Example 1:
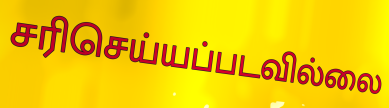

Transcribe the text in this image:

சரிசெய்யப்படவில்லை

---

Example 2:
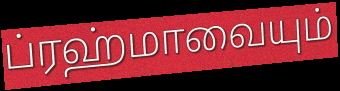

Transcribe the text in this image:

ப்ரஹ்மாவையும்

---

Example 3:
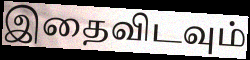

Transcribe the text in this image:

இதைவிடவும்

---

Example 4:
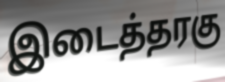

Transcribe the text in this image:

இடைத்தரகு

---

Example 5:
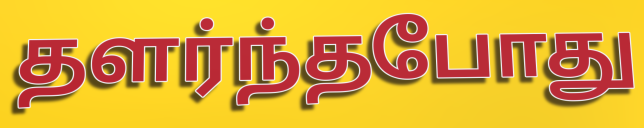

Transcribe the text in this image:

தளர்ந்தபோது